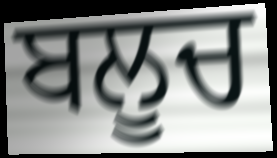
ਬਲੂਚ